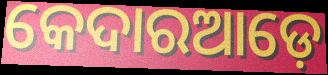
କେଦାରଆଡ଼େ